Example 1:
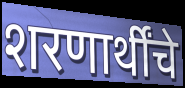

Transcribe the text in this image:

शरणार्थींचे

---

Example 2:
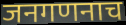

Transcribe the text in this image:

जनगणनाच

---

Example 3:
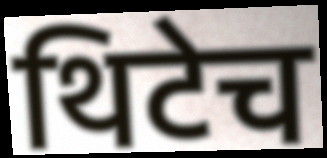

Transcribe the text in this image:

थिटेच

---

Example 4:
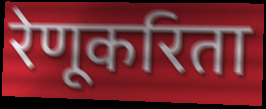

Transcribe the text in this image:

रेणूकरिता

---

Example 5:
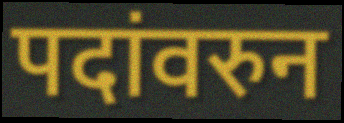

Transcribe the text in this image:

पदांवरुन